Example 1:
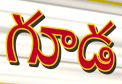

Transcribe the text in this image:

గూడ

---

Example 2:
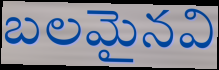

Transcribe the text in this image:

బలమైనవి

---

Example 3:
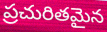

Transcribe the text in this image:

ప్రచురితమైన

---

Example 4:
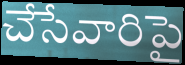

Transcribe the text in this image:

చేసేవారిపై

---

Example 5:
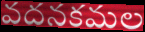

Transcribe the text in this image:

వదనకమల